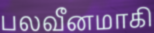
பலவீனமாகி